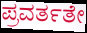
ಪ್ರವರ್ತತೇ